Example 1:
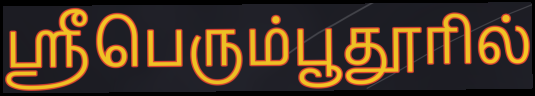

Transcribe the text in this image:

ஸ்ரீபெரும்பூதூரில்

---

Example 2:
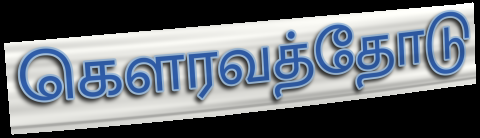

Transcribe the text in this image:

கௌரவத்தோடு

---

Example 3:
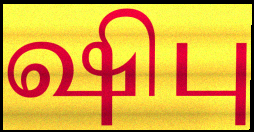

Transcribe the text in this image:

ஷிபு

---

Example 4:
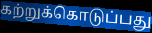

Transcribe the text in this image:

கற்றுக்கொடுப்பது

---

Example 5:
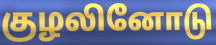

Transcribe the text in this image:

குழலினோடு